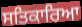
ਸਤਿਕਾਰਿਆ